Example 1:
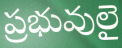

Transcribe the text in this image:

ప్రభువులై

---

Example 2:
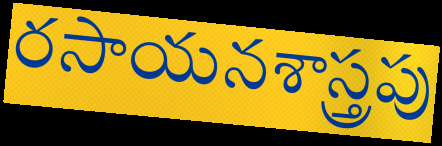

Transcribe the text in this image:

రసాయనశాస్త్రపు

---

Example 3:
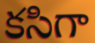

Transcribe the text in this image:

కసిగా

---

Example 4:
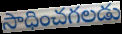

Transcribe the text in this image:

సాధించగలడు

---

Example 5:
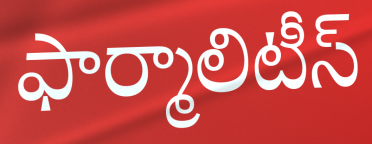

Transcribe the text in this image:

ఫార్మాలిటీస్